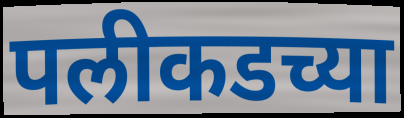
पलीकडच्या